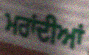
ਮਹਾਂਦੀਆਂ